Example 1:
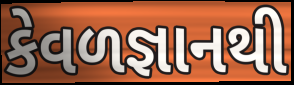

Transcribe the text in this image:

કેવળજ્ઞાનથી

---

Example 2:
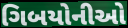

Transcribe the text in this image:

ગિબયોનીઓ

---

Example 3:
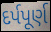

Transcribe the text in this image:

દર્પપૂર્ણ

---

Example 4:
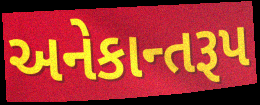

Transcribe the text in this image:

અનેકાન્તરૂપ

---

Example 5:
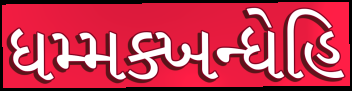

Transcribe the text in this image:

ધમ્મક્ખન્ધેહિ